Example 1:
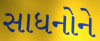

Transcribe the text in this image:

સાધનોને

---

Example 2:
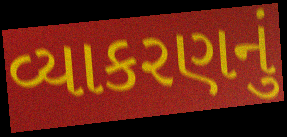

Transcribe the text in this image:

વ્યાકરણનું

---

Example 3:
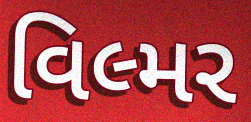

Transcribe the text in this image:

વિલ્મર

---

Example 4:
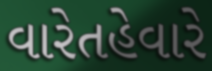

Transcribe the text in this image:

વારેતહેવારે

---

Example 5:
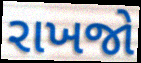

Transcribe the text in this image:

રાખજો